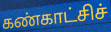
கண்காட்சிச்